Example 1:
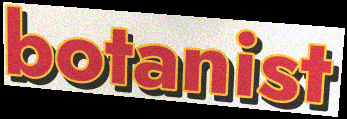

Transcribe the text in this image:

botanist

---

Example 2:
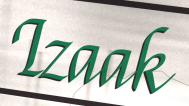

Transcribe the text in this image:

Izaak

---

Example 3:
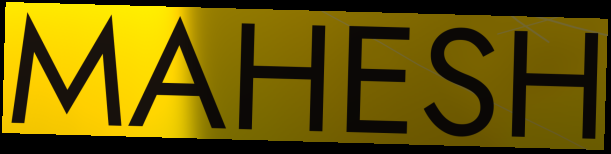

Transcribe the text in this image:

MAHESH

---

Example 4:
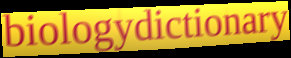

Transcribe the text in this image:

biologydictionary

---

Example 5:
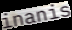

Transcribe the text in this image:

inanis